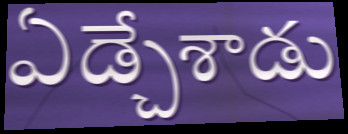
ఏడ్చేశాడు